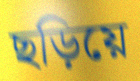
ছড়িয়ে